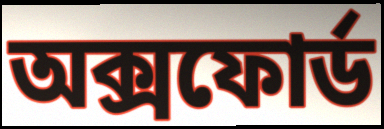
অক্সফোর্ড